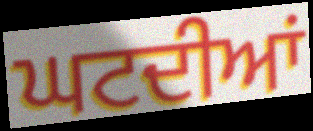
ਘਟਦੀਆਂ